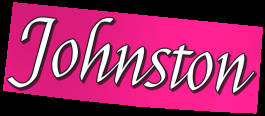
Johnston